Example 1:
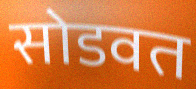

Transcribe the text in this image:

सोडवत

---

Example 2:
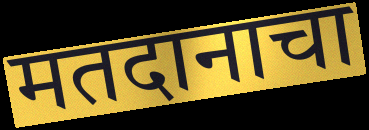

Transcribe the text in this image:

मतदानाचा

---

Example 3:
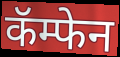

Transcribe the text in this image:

कॅम्फेन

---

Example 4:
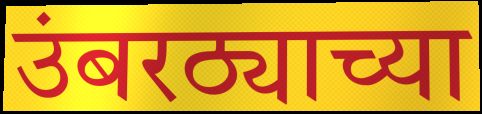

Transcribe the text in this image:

उंबरठ्याच्या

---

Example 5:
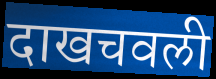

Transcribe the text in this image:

दाखचवली